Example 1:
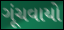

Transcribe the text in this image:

ગૂંચવાયો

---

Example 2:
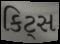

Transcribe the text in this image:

કિટ્સ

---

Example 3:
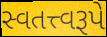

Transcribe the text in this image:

સ્વતત્ત્વરૂપે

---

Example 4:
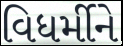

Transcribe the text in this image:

વિધર્મીને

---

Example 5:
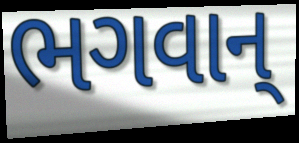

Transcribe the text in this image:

ભગવાન્